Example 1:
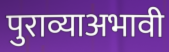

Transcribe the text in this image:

पुराव्याअभावी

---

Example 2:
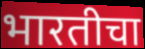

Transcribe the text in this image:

भारतीचा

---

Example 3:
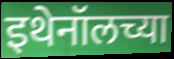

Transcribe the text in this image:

इथेनॉलच्या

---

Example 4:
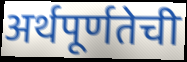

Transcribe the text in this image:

अर्थपूर्णतेची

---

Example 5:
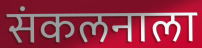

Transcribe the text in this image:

संकलनाला